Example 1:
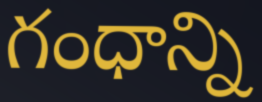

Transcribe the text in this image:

గంధాన్ని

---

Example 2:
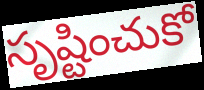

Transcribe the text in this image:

సృష్టించుకో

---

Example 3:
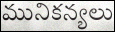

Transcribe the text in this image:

మునికన్యలు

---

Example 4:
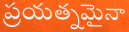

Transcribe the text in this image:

ప్రయత్నమైనా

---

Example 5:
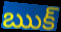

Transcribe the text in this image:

ఋక్